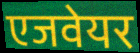
एजवेयर